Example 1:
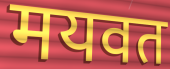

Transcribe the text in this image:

मयवत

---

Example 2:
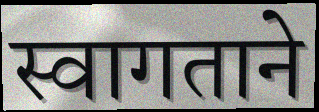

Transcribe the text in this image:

स्वागताने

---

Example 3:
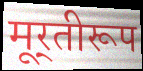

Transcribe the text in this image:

मूर्तीरूप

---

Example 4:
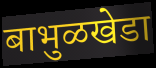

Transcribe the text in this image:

बाभुळखेडा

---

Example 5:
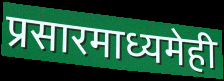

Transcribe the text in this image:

प्रसारमाध्यमेही